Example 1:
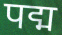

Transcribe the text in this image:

पद्म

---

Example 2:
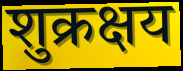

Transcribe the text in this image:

शुक्रक्षय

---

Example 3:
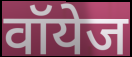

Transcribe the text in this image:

वॉयेज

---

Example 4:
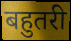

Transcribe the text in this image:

बहुतरी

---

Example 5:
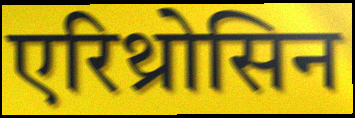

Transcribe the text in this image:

एरिथ्रोसिन